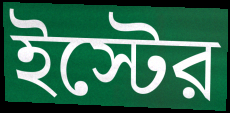
ইস্টের